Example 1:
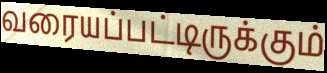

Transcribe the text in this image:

வரையப்பட்டிருக்கும்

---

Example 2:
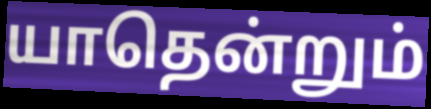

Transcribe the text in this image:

யாதென்றும்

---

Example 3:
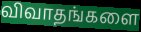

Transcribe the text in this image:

விவாதங்களை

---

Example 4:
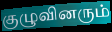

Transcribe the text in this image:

குழுவினரும்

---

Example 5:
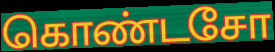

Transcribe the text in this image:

கொண்டசோ